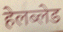
हेलब्लेड